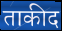
ताकीद